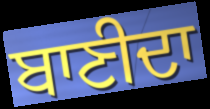
ਬਾਣੀਦਾ